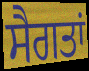
ਸੈਗਤਾਂ